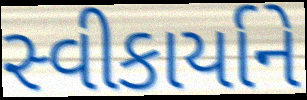
સ્વીકાર્યાને